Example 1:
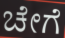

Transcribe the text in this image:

ಚೇಗೆ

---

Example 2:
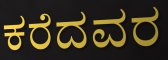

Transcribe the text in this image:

ಕರೆದವರ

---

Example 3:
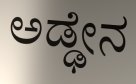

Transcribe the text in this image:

ಅಡ್ಢೇನ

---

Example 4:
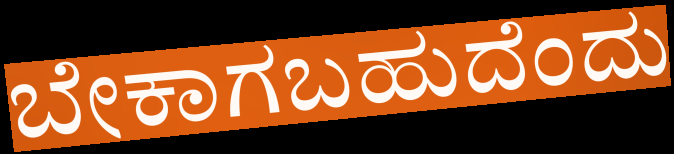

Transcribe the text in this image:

ಬೇಕಾಗಬಹುದೆಂದು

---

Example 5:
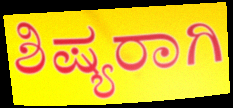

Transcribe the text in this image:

ಶಿಷ್ಯರಾಗಿ